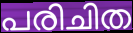
പരിചിത